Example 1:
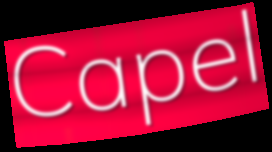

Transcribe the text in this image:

Capel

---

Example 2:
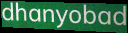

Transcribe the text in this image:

dhanyobad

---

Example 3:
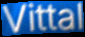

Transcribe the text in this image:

Vittal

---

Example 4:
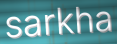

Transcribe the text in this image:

sarkha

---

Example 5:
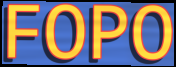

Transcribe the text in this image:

FOPO